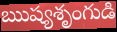
ఋష్యశృంగుడి